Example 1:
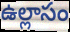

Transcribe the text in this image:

ఉల్లాసం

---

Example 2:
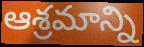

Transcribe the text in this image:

ఆశ్రమాన్ని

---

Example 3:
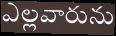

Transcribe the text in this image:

ఎల్లవారును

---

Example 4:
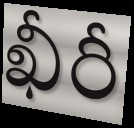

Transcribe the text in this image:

ఖీరీ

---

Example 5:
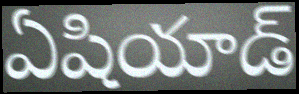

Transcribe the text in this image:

ఏషియాడ్